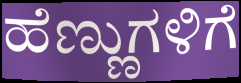
ಹೆಣ್ಣುಗಳಿಗೆ